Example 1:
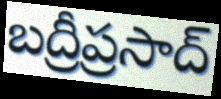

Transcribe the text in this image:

బద్రీప్రసాద్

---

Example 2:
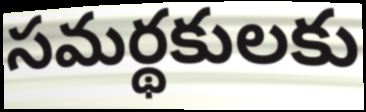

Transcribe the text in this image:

సమర్థకులకు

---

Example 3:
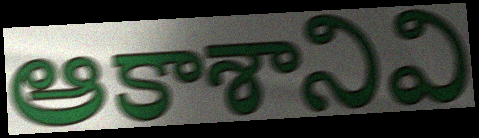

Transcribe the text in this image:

ఆకాశానివి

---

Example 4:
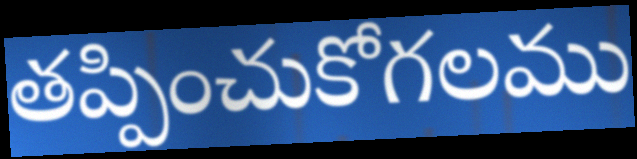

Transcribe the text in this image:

తప్పించుకోగలము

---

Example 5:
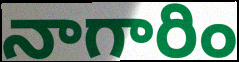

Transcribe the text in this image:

నాగారిం